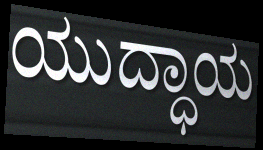
ಯುದ್ಧಾಯ